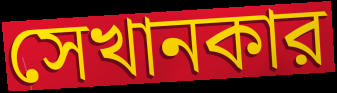
সেখানকার